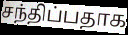
சந்திப்பதாக